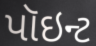
પૉઇન્ટ